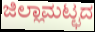
ಜಿಲ್ಲಾಮಟ್ಟದ